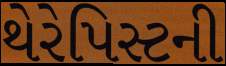
થેરેપિસ્ટની